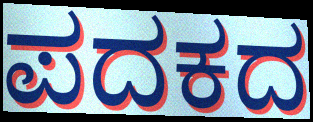
ಪದಕದ